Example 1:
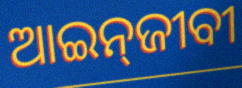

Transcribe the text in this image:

ଆଇନ୍‌ଜୀବୀ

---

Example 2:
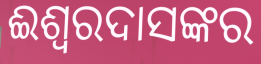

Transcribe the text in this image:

ଈଶ୍ଵରଦାସଙ୍କର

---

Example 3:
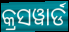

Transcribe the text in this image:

କ୍ରସୱାର୍ଡ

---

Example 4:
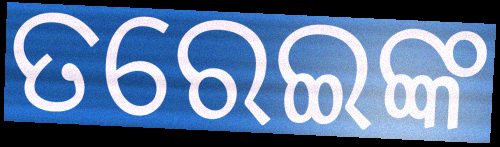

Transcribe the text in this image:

ତରେଇଙ୍କ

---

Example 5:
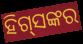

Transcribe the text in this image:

ହିଗ୍‌ସଙ୍କର